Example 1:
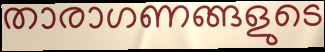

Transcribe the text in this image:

താരാഗണങ്ങളുടെ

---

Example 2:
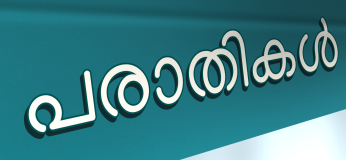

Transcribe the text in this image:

പരാതികൾ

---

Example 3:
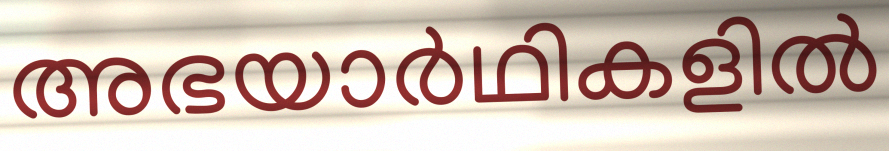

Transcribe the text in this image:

അഭയാർഥികളിൽ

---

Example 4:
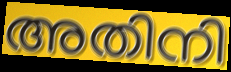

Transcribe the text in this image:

അതിനി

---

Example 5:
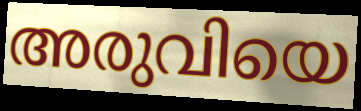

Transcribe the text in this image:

അരുവിയെ